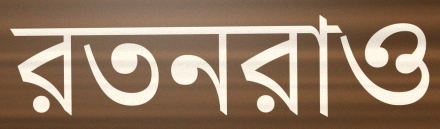
রতনরাও